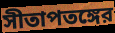
সীতাপতঙ্গের